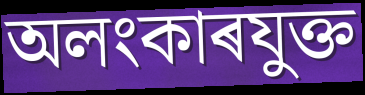
অলংকাৰযুক্ত